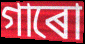
গাৰো